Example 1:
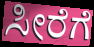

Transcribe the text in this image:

ಸೀರೆಗೆ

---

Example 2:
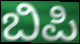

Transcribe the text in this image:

ಬಿಪಿ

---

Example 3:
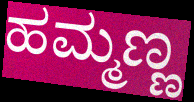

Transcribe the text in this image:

ಹಮ್ಮಣ್ಣ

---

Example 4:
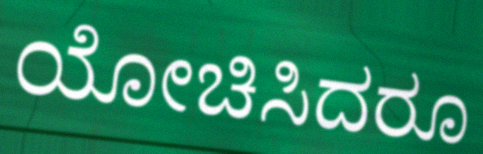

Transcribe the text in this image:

ಯೋಚಿಸಿದರೂ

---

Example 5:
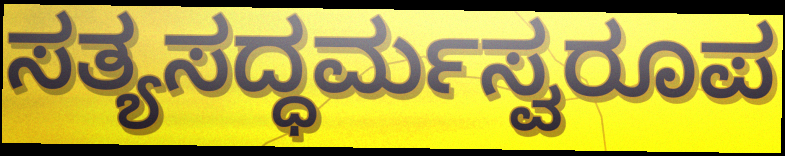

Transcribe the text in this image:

ಸತ್ಯಸದ್ಧರ್ಮಸ್ವರೂಪ